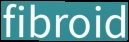
fibroid